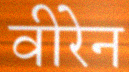
वीरेन